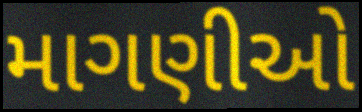
માગણીઓ